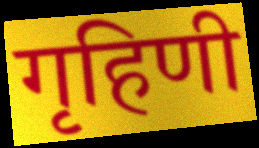
गृहिणी